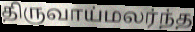
திருவாய்மலர்ந்த